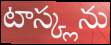
టాస్క్లను